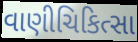
વાણીચિકિત્સા